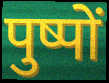
पुष्पों